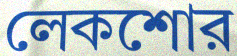
লেকশোর